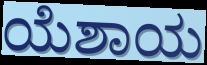
ಯೆಶಾಯ